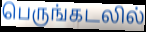
பெருங்கடலில்